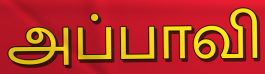
அப்பாவி